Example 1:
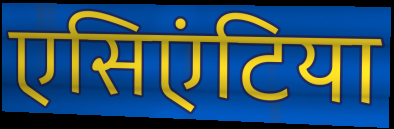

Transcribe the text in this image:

एसिएंटिया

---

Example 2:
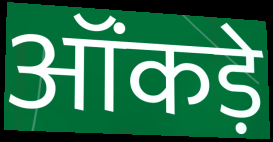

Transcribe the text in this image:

ऑंकड़े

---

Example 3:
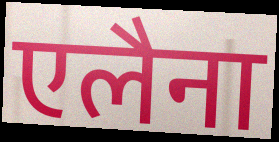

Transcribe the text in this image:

एलैना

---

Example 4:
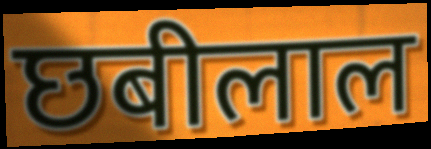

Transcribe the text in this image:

छबीलाल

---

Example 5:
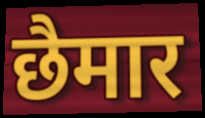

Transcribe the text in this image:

छैमार